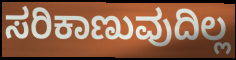
ಸರಿಕಾಣುವುದಿಲ್ಲ